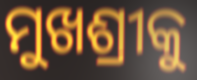
ମୁଖଶ୍ରୀକୁ